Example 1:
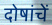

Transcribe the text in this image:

दोषांचें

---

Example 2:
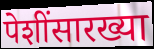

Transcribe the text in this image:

पेशींसारख्या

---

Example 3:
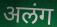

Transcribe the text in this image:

अलंग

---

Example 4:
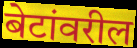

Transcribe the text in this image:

बेटांवरील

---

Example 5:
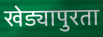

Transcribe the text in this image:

खेड्यापुरता